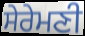
ਸੇਰੇਮਣੀ